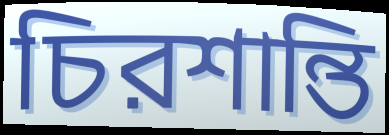
চিরশান্তি